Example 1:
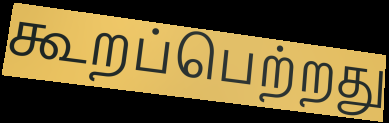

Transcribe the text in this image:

கூறப்பெற்றது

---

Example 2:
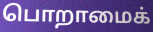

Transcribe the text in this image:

பொறாமைக்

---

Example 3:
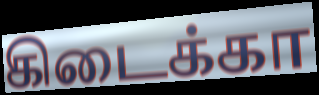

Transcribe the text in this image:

கிடைக்கா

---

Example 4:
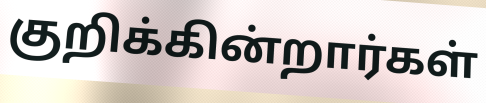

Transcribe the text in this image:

குறிக்கின்றார்கள்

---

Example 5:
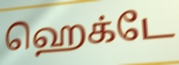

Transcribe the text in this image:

ஹெக்டே